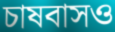
চাষবাসও